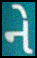
ને